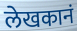
लेखकानं